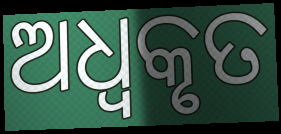
ଅଧ୍ବକୃତ